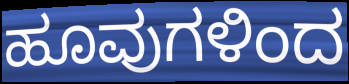
ಹೂವುಗಳಿಂದ